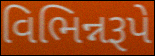
વિભિન્નરૂપે